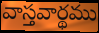
వాస్తవార్థము